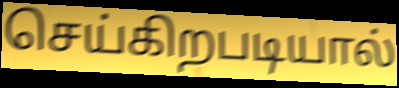
செய்கிறபடியால்